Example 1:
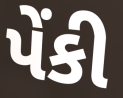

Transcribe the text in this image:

પેંકી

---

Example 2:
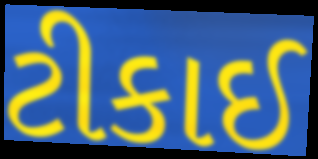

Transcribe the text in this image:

ટીકાઈ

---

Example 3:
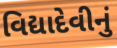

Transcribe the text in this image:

વિદ્યાદેવીનું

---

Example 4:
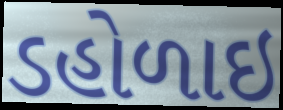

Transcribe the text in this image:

ડહોળાઇ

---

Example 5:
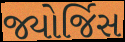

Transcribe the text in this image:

જ્યોર્જિસ